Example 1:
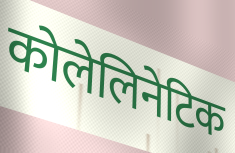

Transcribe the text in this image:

कोलेलिनेटिक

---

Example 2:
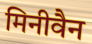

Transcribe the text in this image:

मिनीवैन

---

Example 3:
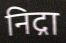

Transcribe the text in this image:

निद्रा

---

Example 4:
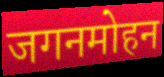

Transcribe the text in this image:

जगनमोहन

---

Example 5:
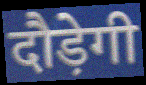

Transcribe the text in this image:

दौड़ेगी